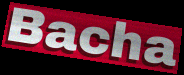
Bacha